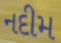
નદીમ